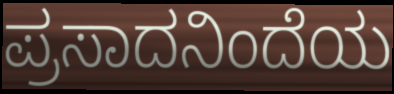
ಪ್ರಸಾದನಿಂದೆಯ